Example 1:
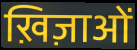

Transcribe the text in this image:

ख़िज़ाओं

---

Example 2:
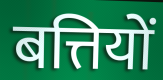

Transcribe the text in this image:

बत्तियों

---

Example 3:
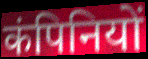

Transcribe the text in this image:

कंपिनियों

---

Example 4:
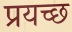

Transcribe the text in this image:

प्रयच्छ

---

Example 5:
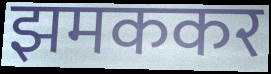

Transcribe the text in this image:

झमककर